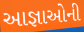
આજ્ઞાઓની